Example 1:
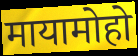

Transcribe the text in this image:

मायामोहो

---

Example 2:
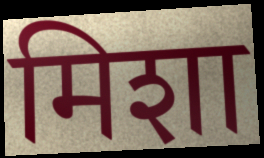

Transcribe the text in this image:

मिशा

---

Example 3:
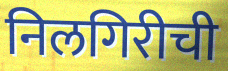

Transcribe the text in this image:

निलगिरीची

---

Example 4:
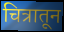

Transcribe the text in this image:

चित्रातून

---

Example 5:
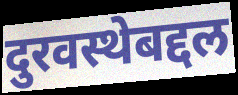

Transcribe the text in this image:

दुरवस्थेबद्दल